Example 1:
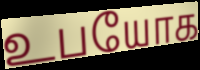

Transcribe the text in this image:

உபயோக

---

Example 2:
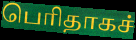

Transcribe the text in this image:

பெரிதாகச்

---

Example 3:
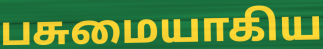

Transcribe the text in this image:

பசுமையாகிய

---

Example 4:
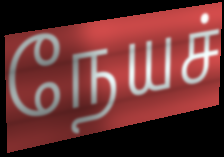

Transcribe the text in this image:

நேயச்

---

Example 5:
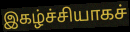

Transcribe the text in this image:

இகழ்ச்சியாகச்